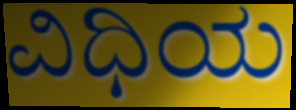
ವಿಧಿಯ